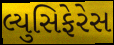
લ્યુસિફેરેસ